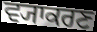
ਵ੍ਯਾਕਰਣ